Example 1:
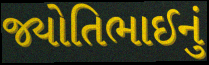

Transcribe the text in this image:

જ્યોતિભાઈનું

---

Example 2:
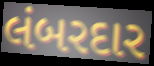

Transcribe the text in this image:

લંબરદાર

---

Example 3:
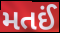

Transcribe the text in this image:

મતઈં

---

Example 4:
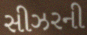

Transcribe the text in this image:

સીઝરની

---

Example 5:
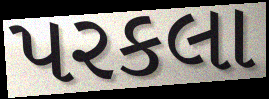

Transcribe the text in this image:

પરકલા